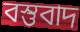
বস্তুবাদ